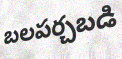
బలపర్చబడి